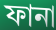
ফানা